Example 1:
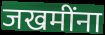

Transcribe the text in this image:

जखमींना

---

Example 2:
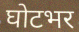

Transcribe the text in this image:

घोटभर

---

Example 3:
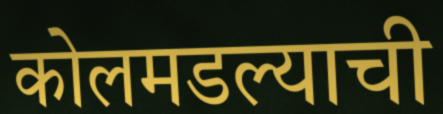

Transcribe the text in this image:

कोलमडल्याची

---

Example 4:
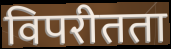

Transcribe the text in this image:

विपरीतता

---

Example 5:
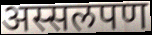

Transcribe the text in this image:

अस्सलपण